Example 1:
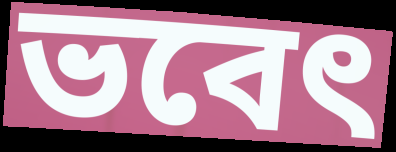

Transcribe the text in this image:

ভবেৎ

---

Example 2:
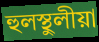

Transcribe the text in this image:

হুলস্থুলীয়া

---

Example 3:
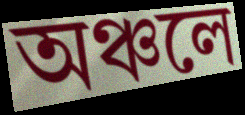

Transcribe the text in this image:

অঞ্চলে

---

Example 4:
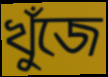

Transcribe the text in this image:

খুঁজে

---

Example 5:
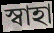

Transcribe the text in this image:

স্বাহা